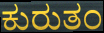
ಕುರುತಂ